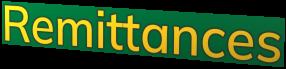
Remittances